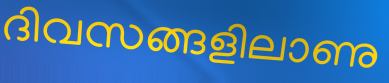
ദിവസങ്ങളിലാണു